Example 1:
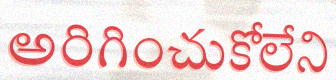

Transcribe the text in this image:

అరిగించుకోలేని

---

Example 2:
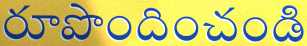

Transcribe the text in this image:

రూపొందించండి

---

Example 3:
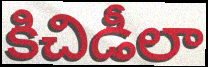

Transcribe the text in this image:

కిచిడీలా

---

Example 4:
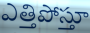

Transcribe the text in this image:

ఎత్తిపోస్తూ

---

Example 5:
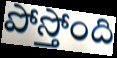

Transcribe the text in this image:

పోస్తోంది